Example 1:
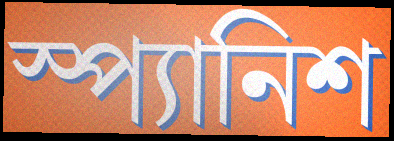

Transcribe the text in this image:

স্প্যানিশ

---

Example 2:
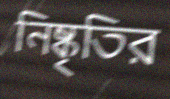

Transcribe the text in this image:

নিষ্কৃতির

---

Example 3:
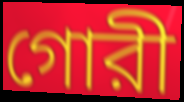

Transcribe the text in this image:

গোরী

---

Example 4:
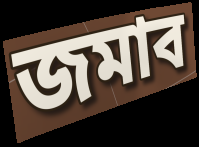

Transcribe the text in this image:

জমাব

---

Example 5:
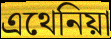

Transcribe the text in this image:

এথেনিয়া